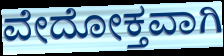
ವೇದೋಕ್ತವಾಗಿ